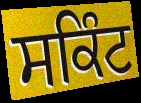
ਸਕਿੰਟ